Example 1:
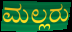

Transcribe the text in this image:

ಮಲ್ಲರು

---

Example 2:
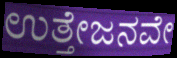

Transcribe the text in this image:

ಉತ್ತೇಜನವೇ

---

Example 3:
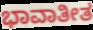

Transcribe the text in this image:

ಭಾವಾತೀತ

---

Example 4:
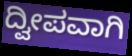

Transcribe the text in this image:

ದ್ವೀಪವಾಗಿ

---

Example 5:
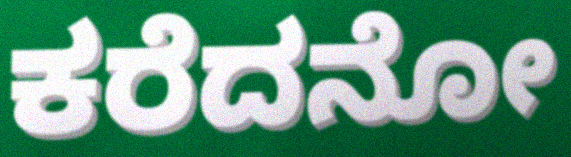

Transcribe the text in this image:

ಕರೆದನೋ